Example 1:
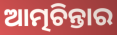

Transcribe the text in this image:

ଆତ୍ମଚିନ୍ତାର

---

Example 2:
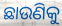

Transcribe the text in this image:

ଛାଉଣିକୁ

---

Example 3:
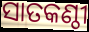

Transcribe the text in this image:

ସାତକଣ୍ଠୀ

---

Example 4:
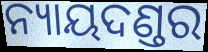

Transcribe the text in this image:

ନ୍ୟାୟଦଣ୍ଡର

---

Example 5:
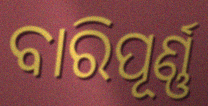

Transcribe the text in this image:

ବାରିପୂର୍ଣ୍ଣ